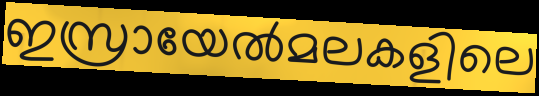
ഇസ്രായേൽമലകളിലെ